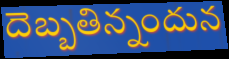
దెబ్బతిన్నందున